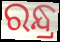
ରନ୍ଧ୍ର